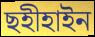
ছহীহাইন